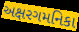
અક્ષરગમનિકા